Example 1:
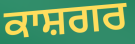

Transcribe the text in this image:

ਕਾਸ਼ਗਰ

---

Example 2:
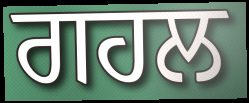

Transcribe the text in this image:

ਗਹਲ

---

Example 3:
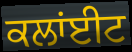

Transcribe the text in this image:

ਕਲਾਂਈਟ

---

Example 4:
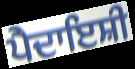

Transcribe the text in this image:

ਪੈਦਾਇਸ਼ੀ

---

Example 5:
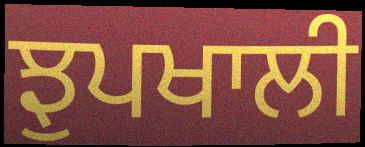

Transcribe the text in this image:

ਝੁਪਖਾਲੀ